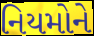
નિયમોને